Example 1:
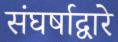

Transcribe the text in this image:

संघर्षाद्वारे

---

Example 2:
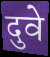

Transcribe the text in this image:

दुवे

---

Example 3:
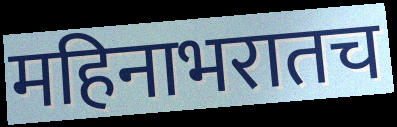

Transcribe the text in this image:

महिनाभरातच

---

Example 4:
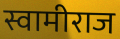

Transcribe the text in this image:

स्वामीराज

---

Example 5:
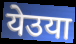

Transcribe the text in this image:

येउया